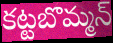
కట్టబొమ్మన్